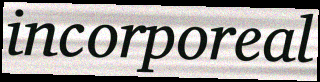
incorporeal